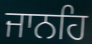
ਜਾਨਹਿ